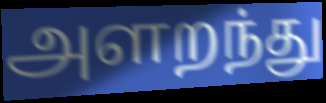
அளறந்து